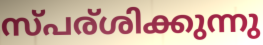
സ്പര്ശിക്കുന്നു